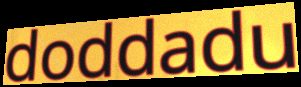
doddadu